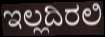
ಇಲ್ಲದಿರಲಿ